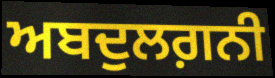
ਅਬਦੁਲਗ਼ਨੀ